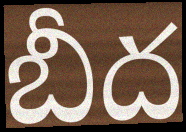
బీద